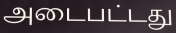
அடைபட்டது